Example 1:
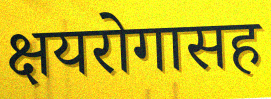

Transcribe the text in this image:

क्षयरोगासह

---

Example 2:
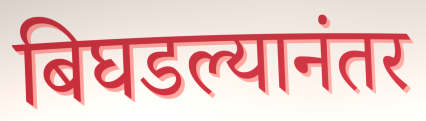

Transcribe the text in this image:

बिघडल्यानंतर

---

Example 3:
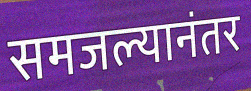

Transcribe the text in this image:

समजल्यानंतर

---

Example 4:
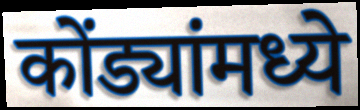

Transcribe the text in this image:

कोंड्यांमध्ये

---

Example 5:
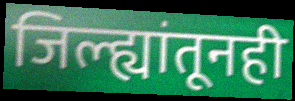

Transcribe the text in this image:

जिल्ह्यांतूनही